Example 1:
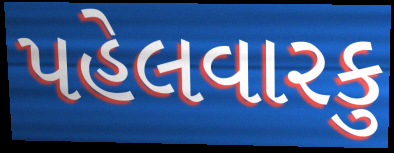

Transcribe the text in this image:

પહેલવારકુ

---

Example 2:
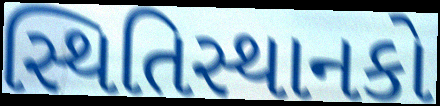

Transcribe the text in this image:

સ્થિતિસ્થાનકો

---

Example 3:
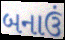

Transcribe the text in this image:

બનાઉં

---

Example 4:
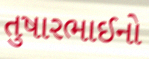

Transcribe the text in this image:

તુષારભાઈનો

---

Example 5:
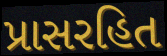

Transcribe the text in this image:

પ્રાસરહિત